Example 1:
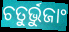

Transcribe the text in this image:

ଚତୁର୍ଭୁଜାଂ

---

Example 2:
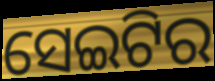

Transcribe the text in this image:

ସେଇଟିର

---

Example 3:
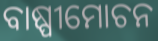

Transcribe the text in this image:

ବାଷ୍ପୀମୋଚନ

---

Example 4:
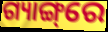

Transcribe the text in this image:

ଗ୍ୟାଙ୍ଗ୍‌ରେ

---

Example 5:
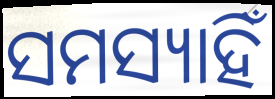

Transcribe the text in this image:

ସମସ୍ୟାହିଁ